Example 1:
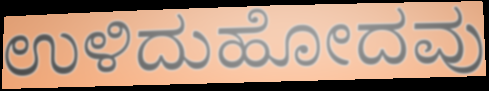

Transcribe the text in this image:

ಉಳಿದುಹೋದವು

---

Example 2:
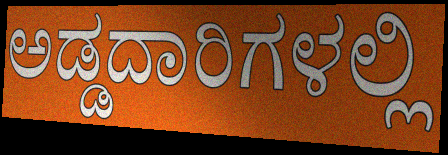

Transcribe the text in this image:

ಅಡ್ಡದಾರಿಗಳಲ್ಲಿ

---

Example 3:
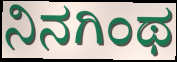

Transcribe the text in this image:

ನಿನಗಿಂಥ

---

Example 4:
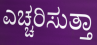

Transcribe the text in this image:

ಎಚ್ಚರಿಸುತ್ತಾ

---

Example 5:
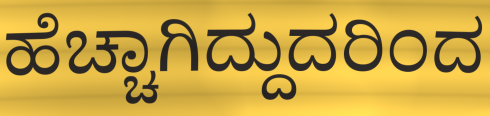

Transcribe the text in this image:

ಹೆಚ್ಚಾಗಿದ್ದುದರಿಂದ